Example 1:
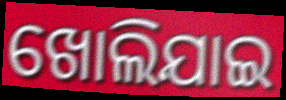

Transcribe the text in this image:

ଖୋଲିଯାଇ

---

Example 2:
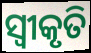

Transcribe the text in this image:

ସ୍ବୀକୃତି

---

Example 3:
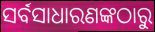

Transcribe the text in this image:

ସର୍ବସାଧାରଣଙ୍କଠାରୁ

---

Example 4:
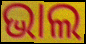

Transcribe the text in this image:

ଭାଲ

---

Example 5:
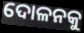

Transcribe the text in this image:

ଦୋଳନକୁ